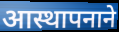
आस्थापनाने